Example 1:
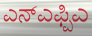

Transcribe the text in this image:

ಎನ್ಎಫ್ಪಿಎ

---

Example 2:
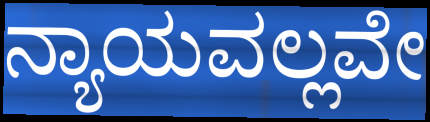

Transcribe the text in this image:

ನ್ಯಾಯವಲ್ಲವೇ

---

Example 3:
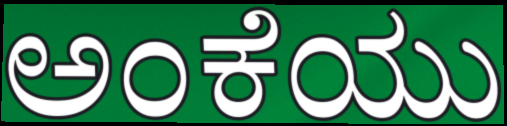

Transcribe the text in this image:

ಅಂಕೆಯು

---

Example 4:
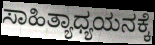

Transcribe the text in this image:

ಸಾಹಿತ್ಯಾಧ್ಯಯನಕ್ಕೆ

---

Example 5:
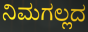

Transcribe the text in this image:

ನಿಮಗಲ್ಲದ